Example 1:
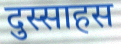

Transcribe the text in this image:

दुस्साहस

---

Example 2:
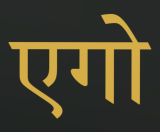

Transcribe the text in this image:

एगो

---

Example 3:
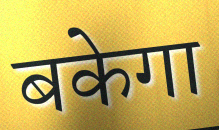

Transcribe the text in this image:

बकेगा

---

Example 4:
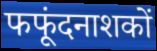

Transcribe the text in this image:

फफूंदनाशकों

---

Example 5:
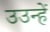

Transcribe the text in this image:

उउन्हें